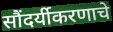
सौंदर्यीकरणाचे